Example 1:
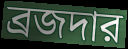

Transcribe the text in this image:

ব্রজদার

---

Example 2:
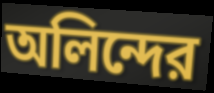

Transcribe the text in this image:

অলিন্দের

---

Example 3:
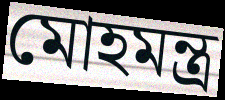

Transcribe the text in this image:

মোহমন্ত্র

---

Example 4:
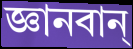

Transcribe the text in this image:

জ্ঞানবান্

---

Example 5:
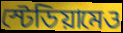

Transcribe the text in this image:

স্টেডিয়ামেও